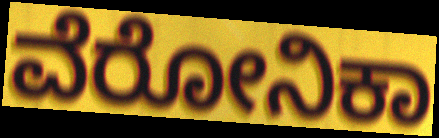
ವೆರೋನಿಕಾ